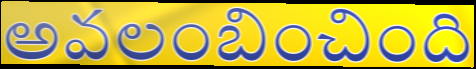
అవలంబించింది